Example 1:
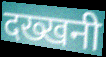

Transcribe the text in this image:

दख्खनी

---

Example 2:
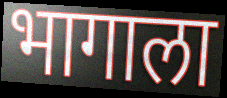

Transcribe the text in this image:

भागाला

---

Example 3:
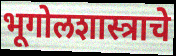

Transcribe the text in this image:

भूगोलशास्त्राचे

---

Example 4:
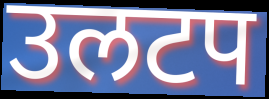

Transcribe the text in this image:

उलटप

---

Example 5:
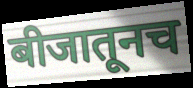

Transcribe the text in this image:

बीजातूनच